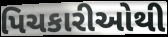
પિચકારીઓથી